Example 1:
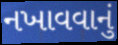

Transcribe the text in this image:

નખાવવાનું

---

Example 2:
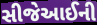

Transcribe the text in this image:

સીજેઆઈની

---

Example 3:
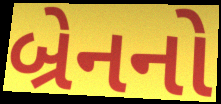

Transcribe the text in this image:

બ્રેનનો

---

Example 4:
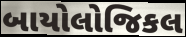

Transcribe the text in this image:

બાયોલોજિકલ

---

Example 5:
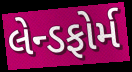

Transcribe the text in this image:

લેન્ડફોર્મ